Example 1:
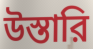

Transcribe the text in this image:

উস্তারি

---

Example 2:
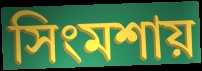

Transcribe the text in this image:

সিংমশায়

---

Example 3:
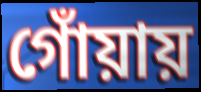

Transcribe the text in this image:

গোঁয়ায়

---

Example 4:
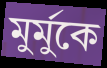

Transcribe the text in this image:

মুর্মুকে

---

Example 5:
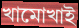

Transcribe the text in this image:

খামোখাই